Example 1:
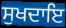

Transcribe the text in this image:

ਸੁਖਦਾਇ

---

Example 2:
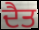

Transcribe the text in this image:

ਦੈਤ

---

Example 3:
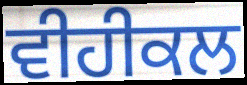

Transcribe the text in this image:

ਵੀਹੀਕਲ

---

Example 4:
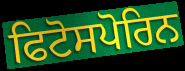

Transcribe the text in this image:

ਫਿਟੋਸਪੋਰਿਨ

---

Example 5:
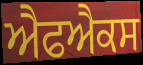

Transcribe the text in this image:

ਐਫਐਕਸ